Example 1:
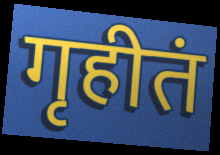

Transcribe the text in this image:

गृहीतं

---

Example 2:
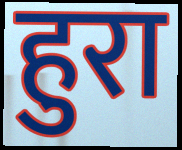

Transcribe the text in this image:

हुरा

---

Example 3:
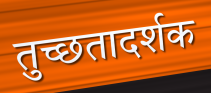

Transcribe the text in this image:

तुच्छतादर्शक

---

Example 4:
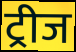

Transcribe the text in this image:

ट्रीज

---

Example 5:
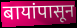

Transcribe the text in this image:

बायांपासून